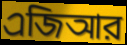
এজিআর